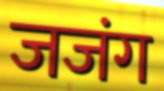
जजंग